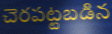
చెరపట్టబడిన